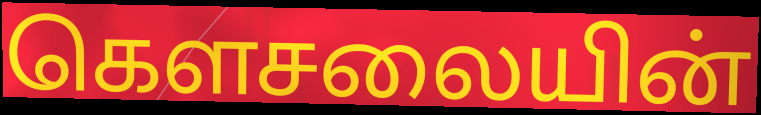
கௌசலையின்